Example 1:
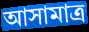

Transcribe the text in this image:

আসামাত্র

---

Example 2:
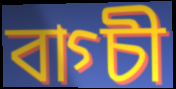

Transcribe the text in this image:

বাগ্চী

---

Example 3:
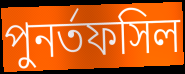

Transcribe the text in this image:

পুনর্তফসিল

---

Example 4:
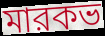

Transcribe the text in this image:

মারকভ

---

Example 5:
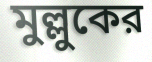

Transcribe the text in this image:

মুল্লুকের